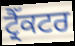
ਟ੍ਰੈੱਕਟਰ